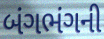
બંગભંગની